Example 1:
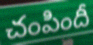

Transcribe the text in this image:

చంపిందీ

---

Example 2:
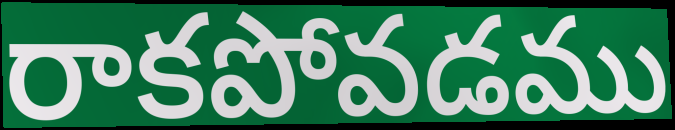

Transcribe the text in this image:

రాకపోవడము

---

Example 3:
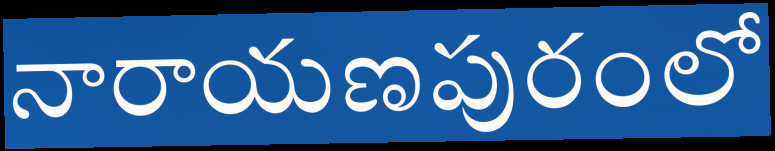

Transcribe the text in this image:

నారాయణపురంలో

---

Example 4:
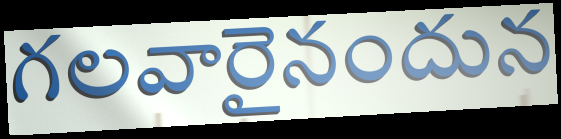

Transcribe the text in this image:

గలవారైనందున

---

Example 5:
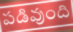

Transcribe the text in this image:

పడివుంది